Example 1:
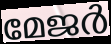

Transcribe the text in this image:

മേജർ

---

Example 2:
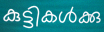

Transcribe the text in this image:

കുട്ടികൾക്കു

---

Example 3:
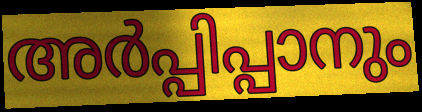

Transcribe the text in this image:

അർപ്പിപ്പാനും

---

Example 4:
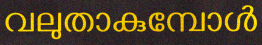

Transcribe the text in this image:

വലുതാകുമ്പോൾ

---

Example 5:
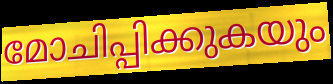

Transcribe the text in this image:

മോചിപ്പിക്കുകയും